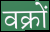
वक्रों